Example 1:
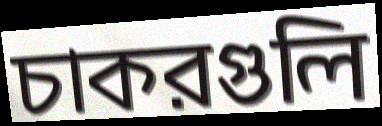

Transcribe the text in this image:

চাকরগুলি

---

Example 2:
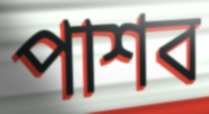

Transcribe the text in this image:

পাশব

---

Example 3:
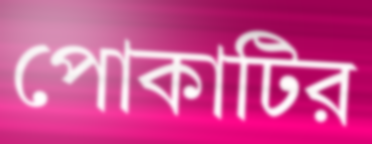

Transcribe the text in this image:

পোকাটির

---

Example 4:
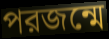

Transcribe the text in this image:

পরজন্মে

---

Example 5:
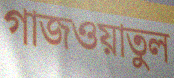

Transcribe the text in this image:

গাজওয়াতুল